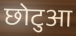
छोटुआ